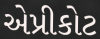
એપ્રીકોટ